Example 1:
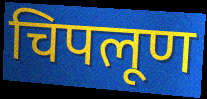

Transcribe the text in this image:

चिपलूण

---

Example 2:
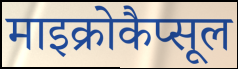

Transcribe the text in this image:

माइक्रोकैप्सूल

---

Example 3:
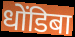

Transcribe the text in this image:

धोंडिबा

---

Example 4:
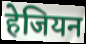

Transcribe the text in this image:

हेजियन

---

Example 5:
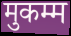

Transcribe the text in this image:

मुकम्म